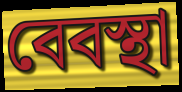
বেবস্থা